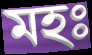
মহঃ